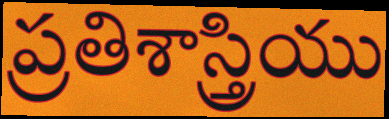
ప్రతిశాస్త్రియు